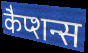
कैप्शन्स